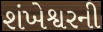
શંખેશ્વરની